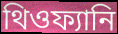
থিওফ্যানি